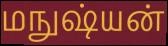
மநுஷ்யன்